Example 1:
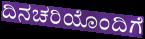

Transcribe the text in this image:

ದಿನಚರಿಯೊಂದಿಗೆ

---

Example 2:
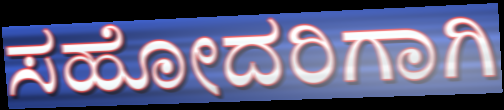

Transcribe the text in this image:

ಸಹೋದರಿಗಾಗಿ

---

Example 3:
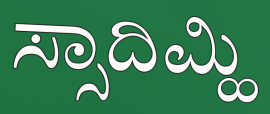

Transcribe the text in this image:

ಸ್ಸಾದಿಮ್ಹಿ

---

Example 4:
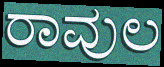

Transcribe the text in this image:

ರಾವುಲ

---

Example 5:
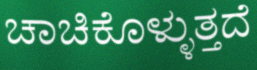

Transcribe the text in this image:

ಚಾಚಿಕೊಳ್ಳುತ್ತದೆ